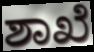
ಶಾಖೆ